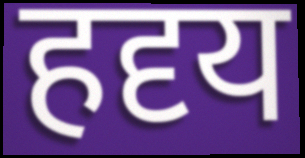
हदृय